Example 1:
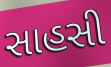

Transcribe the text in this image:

સાહસી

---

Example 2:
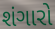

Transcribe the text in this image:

શંગારો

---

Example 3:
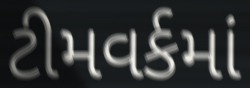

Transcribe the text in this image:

ટીમવર્કમાં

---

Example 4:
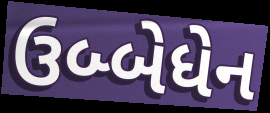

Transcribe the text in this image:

ઉબ્બેધેન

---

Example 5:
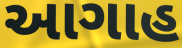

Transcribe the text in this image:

આગાહ